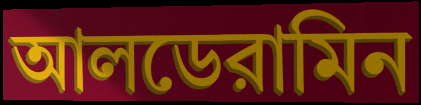
আলডেরামিন